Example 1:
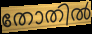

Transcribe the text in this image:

തോതിൽ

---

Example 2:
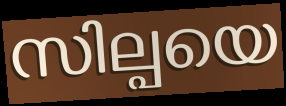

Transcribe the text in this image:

സില്പയെ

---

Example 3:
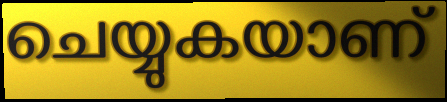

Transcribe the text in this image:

ചെയ്യുകയാണ്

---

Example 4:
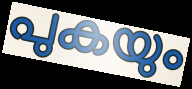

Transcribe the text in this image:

പുകയും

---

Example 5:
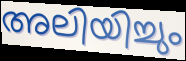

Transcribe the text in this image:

അലിയിച്ചും